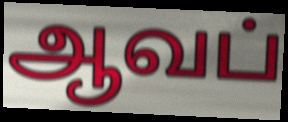
ஆவப்